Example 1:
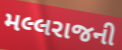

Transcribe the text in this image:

મલ્લરાજની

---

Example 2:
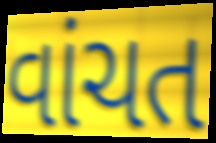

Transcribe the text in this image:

વાંચત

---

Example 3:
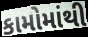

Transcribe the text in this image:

કામોમાંથી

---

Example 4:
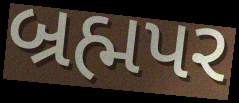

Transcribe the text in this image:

બ્રહ્મપર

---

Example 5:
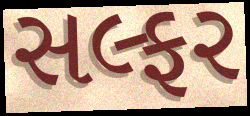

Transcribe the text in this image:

સલ્ફર